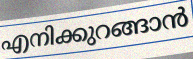
എനിക്കുറങ്ങാൻ